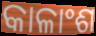
କାଳାଂଶ